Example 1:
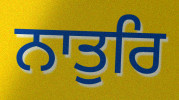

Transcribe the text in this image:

ਨਾਤੁਰਿ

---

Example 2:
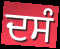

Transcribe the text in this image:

ਦਸੰ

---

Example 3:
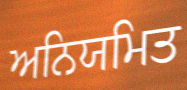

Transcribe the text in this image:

ਅਨਿਯਮਿਤ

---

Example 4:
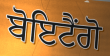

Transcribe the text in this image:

ਬੋਇਟੈਂਗੋ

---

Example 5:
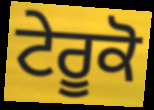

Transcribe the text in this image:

ਟੇਰੂਕੋ